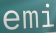
emi